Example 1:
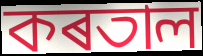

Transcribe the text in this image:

কৰতাল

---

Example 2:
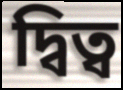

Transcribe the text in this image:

দ্বিত্ব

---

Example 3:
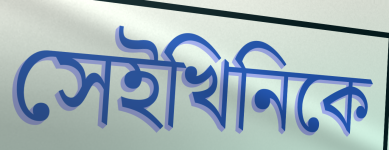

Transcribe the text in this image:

সেইখিনিকে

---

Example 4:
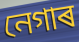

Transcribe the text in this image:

নেগাৰ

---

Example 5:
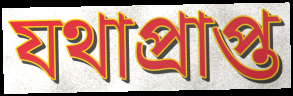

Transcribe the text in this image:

যথাপ্ৰাপ্ত